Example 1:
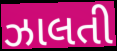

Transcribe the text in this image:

ઝાલતી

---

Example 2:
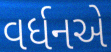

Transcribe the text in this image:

વર્ધનએ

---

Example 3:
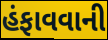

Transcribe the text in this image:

હંફાવવાની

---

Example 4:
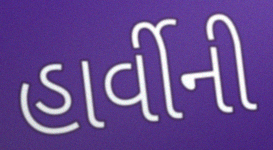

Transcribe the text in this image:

હાર્વીની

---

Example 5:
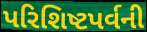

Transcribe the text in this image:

પરિશિષ્ટપર્વની